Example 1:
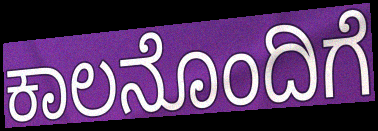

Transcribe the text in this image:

ಕಾಲನೊಂದಿಗೆ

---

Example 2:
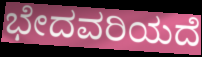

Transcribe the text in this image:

ಭೇದವರಿಯದೆ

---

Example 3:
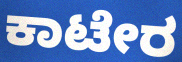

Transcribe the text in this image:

ಕಾಟೇರ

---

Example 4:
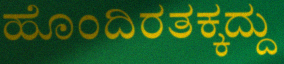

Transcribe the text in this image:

ಹೊಂದಿರತಕ್ಕದ್ದು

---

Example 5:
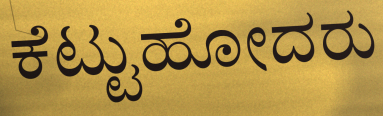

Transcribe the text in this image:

ಕೆಟ್ಟುಹೋದರು